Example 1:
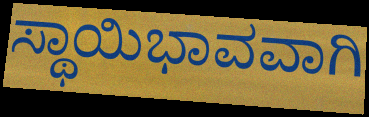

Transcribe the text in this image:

ಸ್ಥಾಯಿಭಾವವಾಗಿ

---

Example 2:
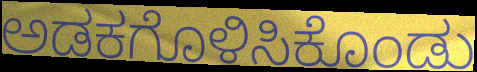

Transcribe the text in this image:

ಅಡಕಗೊಳಿಸಿಕೊಂಡು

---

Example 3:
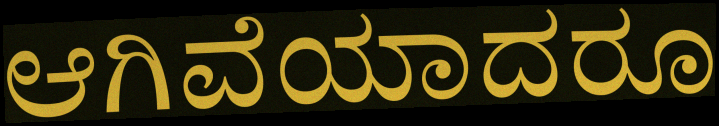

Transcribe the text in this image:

ಆಗಿವೆಯಾದರೂ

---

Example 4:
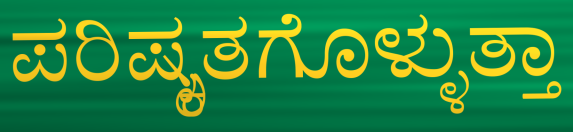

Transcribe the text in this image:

ಪರಿಷ್ಕೃತಗೊಳ್ಳುತ್ತಾ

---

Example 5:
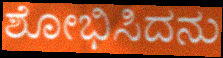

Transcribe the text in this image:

ಶೋಭಿಸಿದನು